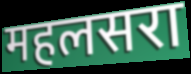
महलसरा